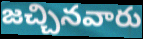
జచ్చినవారు